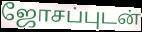
ஜோசப்புடன்